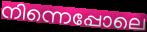
നിന്നെപ്പോലെ